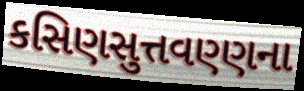
કસિણસુત્તવણ્ણના